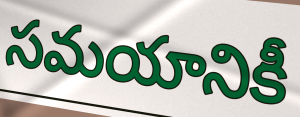
సమయానికీ